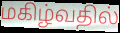
மகிழ்வதில்